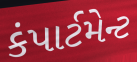
કંપાર્ટમેન્ટ